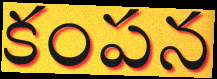
కంపన